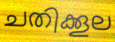
ചതിക്കൂല